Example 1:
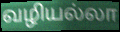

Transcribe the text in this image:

வழியல்லா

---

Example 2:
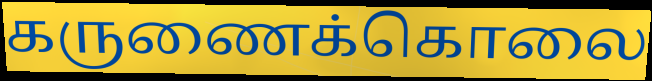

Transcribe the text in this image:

கருணைக்கொலை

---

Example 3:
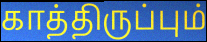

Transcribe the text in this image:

காத்திருப்பும்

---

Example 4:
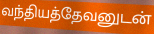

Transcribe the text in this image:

வந்தியத்தேவனுடன்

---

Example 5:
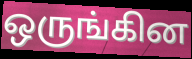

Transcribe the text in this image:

ஒருங்கின